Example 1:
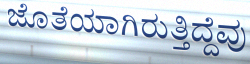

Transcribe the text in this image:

ಜೊತೆಯಾಗಿರುತ್ತಿದ್ದೆವು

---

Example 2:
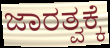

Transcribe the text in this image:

ಜಾರತ್ವಕ್ಕೆ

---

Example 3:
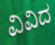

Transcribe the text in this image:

ವಿವಿದ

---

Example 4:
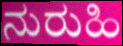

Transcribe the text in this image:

ನುರುಹಿ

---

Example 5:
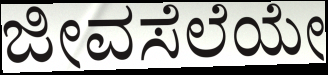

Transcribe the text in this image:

ಜೀವಸೆಲೆಯೇ